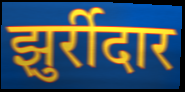
झुर्रीदार